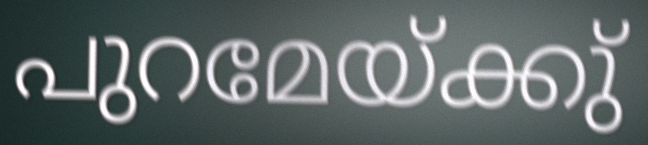
പുറമേയ്ക്കു്